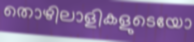
തൊഴിലാളികളുടെയോ